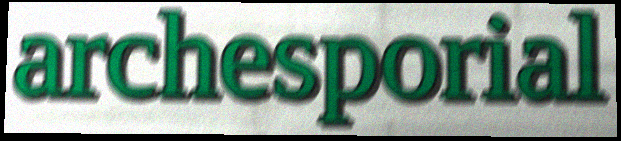
archesporial